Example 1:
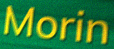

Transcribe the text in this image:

Morin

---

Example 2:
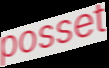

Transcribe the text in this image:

posset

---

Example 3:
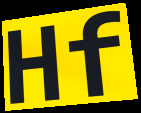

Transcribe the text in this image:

Hf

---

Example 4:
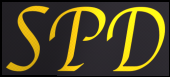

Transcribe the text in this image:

SPD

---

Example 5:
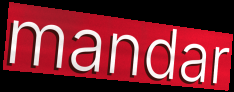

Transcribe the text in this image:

mandar